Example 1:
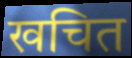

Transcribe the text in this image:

खचित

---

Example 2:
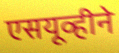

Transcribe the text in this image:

एसयूव्हीने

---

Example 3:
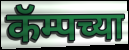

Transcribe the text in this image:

कॅम्पच्या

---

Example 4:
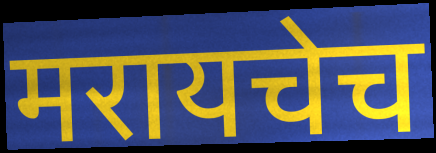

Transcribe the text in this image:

मरायचेच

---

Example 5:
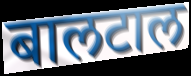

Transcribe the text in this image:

बालटाल